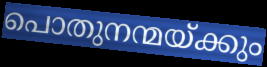
പൊതുനന്മയ്ക്കും